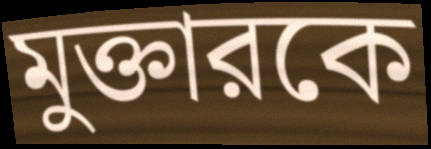
মুক্তারকে